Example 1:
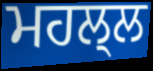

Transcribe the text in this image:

ਮਹਲ੍ਲ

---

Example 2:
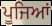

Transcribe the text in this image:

ਪੂਜਿਆਂ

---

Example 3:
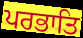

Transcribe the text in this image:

ਪਰਭਾਤਿ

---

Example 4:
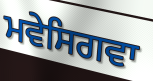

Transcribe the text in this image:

ਮਵੇਸਿਗਵਾ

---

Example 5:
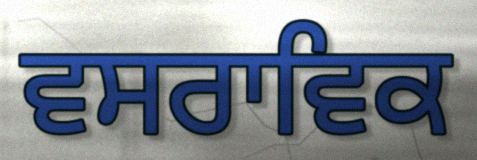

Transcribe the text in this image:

ਵਸਰਾਵਿਕ